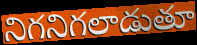
నిగనిగలాడుతూ